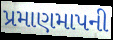
પ્રમાણમાપની